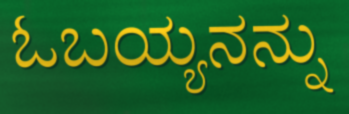
ಓಬಯ್ಯನನ್ನು